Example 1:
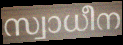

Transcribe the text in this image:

സ്വാധീന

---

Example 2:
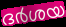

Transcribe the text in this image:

ദർശയ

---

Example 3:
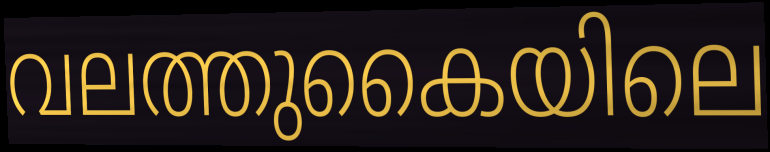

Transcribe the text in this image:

വലത്തുകൈയിലെ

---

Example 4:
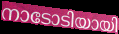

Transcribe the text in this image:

നാടോടിയായി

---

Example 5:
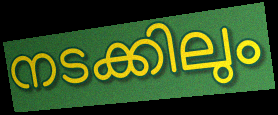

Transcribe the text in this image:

നടക്കിലും